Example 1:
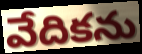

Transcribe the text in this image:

వేదికను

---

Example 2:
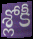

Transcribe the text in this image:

శ్లోకీ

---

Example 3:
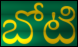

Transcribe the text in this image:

బోటి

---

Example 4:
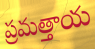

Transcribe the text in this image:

ప్రమత్తాయ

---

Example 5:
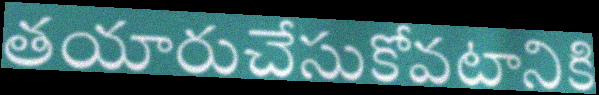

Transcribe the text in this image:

తయారుచేసుకోవటానికి